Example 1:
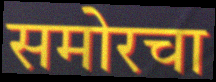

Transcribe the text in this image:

समोरचा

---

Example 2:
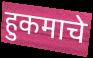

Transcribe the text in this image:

हुकमाचे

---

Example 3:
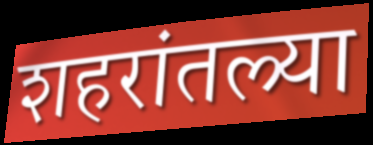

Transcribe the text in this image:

शहरांतल्या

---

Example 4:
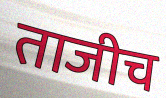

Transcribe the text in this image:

ताजीच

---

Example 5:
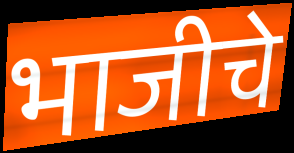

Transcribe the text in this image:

भाजीचे